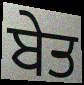
ਬੇਤ